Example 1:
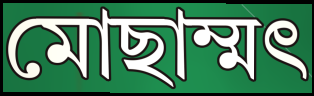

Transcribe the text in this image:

মোছাম্মৎ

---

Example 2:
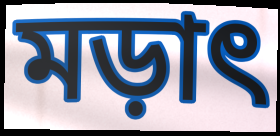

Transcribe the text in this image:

মড়াৎ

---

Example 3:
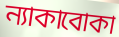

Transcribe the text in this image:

ন্যাকাবোকা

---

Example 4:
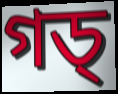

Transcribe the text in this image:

গড্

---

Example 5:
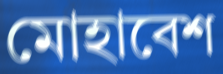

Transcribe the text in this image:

মোহাবেশ